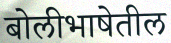
बोलीभाषेतील